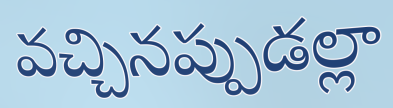
వచ్చినప్పుడల్లా